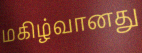
மகிழ்வானது